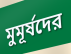
মুমূর্ষদের